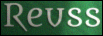
Reuss